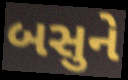
બસુને